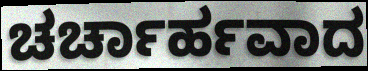
ಚರ್ಚಾರ್ಹವಾದ